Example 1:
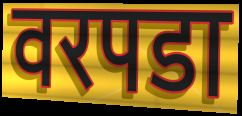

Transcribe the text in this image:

वरपडा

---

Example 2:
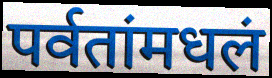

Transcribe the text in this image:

पर्वतांमधलं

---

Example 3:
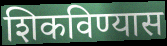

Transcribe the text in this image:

शिकविण्यास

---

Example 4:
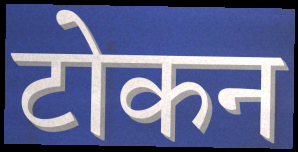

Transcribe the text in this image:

टोकन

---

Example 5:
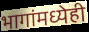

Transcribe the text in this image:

भागांमध्येही